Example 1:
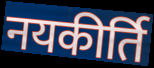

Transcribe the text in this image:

नयकीर्ति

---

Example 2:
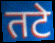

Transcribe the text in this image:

तटे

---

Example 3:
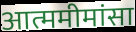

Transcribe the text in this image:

आत्ममीमांसा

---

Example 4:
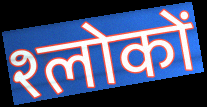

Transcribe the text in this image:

श्लोकों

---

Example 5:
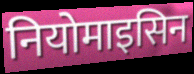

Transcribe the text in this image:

नियोमाइसिन